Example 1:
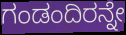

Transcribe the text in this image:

ಗಂಡಂದಿರನ್ನೇ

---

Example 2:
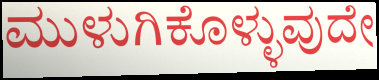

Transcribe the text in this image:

ಮುಳುಗಿಕೊಳ್ಳುವುದೇ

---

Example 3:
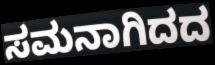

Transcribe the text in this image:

ಸಮನಾಗಿದದ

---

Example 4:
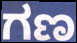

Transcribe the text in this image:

ಗಣ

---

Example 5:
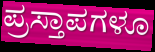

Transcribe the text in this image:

ಪ್ರಸ್ತಾಪಗಳೂ